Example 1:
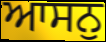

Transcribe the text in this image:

ਆਸਨੁ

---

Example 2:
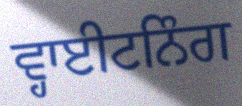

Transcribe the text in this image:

ਵ੍ਹਾਈਟਨਿੰਗ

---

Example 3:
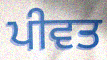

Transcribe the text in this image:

ਪੀਵਤ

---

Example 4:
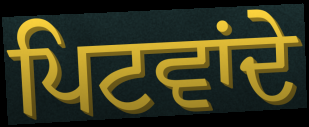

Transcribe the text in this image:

ਪਿਟਵਾਂਦੇ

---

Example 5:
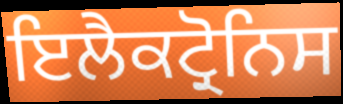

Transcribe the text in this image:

ਇਲੈਕਟ੍ਰੋਨਿਸ